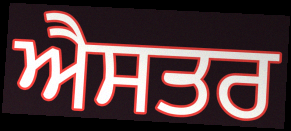
ਐਸਤਰ